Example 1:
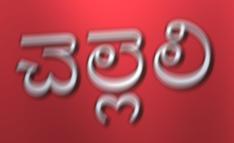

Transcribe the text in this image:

చెల్లెలి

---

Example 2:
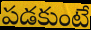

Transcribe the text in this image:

పడకుంటే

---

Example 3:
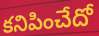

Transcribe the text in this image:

కనిపించేదో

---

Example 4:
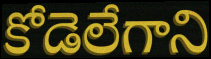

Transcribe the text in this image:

కోడెలేగాని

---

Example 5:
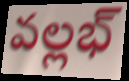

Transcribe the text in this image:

వల్లభ్